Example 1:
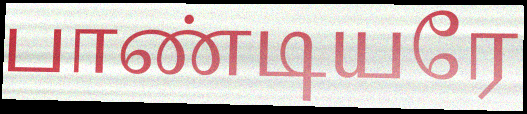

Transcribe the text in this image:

பாண்டியரே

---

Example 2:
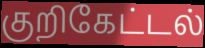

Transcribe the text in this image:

குறிகேட்டல்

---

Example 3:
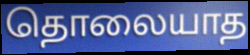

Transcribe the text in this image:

தொலையாத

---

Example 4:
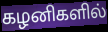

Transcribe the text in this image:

கழனிகளில்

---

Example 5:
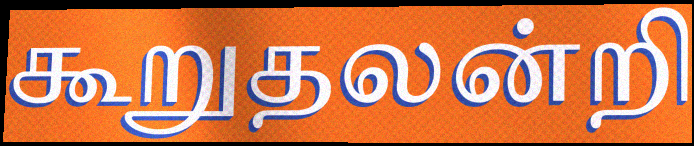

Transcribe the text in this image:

கூறுதலன்றி